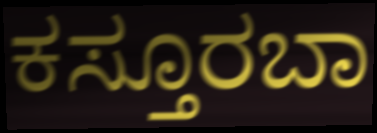
ಕಸ್ತೂರಬಾ